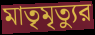
মাতৃমৃত্যুর